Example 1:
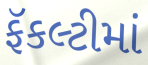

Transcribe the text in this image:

ફૅકલ્ટીમાં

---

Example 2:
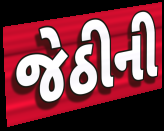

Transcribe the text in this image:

જેઠીની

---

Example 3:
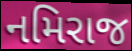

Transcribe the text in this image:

નમિરાજ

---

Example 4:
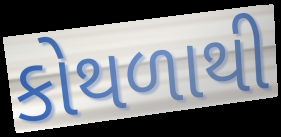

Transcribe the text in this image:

કોથળાથી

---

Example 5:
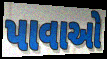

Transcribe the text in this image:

પાવાઓ